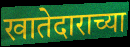
खातेदाराच्या